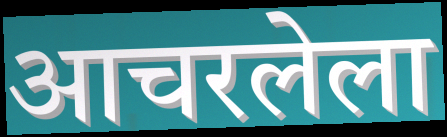
आचरलेला